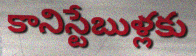
కానిస్టేబుళ్లకు